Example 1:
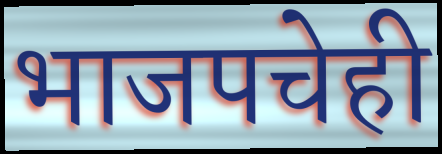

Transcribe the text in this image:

भाजपचेही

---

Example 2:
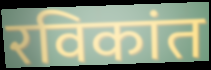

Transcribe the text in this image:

रविकांत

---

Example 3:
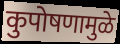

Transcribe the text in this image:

कुपोषणामुळे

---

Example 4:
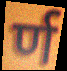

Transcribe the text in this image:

र्ण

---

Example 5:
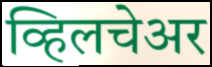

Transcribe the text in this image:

व्हिलचेअर